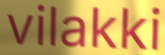
vilakki